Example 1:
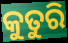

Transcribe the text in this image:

କୁତୁରି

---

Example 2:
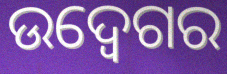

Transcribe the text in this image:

ଉଦ୍ବେଗର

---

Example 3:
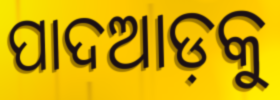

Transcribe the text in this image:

ପାଦଆଡ଼କୁ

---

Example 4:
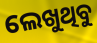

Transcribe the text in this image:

ଲେଖୁଥିବୁ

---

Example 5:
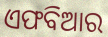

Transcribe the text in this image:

ଏଫବିଆର